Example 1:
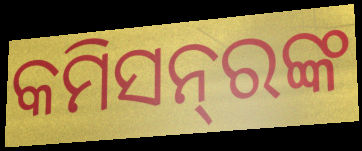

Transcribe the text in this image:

କମିସନ୍‍ରଙ୍କ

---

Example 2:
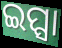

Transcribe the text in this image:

ଇପ୍ସା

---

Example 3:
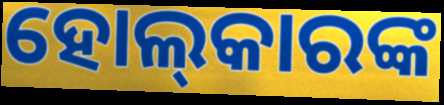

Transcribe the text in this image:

ହୋଲ୍‍କାରଙ୍କ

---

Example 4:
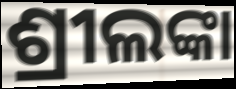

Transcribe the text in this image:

ଶ୍ରୀଲଙ୍କା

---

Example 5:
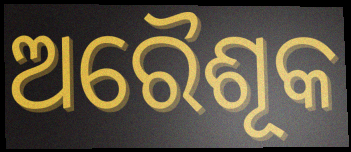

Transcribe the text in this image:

ଅରୈଶୂକ